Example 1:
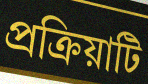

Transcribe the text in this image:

প্রক্রিয়াটি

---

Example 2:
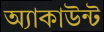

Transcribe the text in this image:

অ্যাকাউন্ট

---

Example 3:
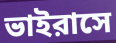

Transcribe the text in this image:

ভাইরাসে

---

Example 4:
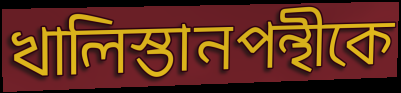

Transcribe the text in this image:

খালিস্তানপন্থীকে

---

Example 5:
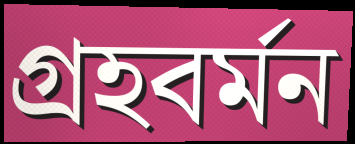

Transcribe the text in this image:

গ্রহবর্মন